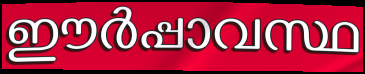
ഈർപ്പാവസ്ഥ